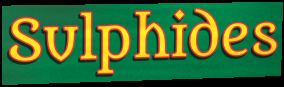
Sulphides